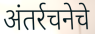
अंतर्रचनेचे